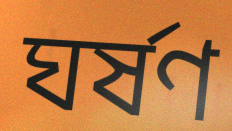
ঘৰ্ষণ